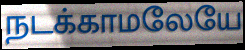
நடக்காமலேயே